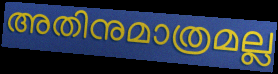
അതിനുമാത്രമല്ല